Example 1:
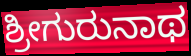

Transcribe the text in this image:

ಶ್ರೀಗುರುನಾಥ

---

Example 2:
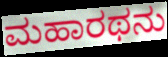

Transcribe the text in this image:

ಮಹಾರಥನು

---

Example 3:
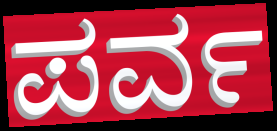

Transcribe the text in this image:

ಪರ್ವ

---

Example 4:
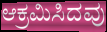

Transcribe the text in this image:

ಆಕ್ರಮಿಸಿದವು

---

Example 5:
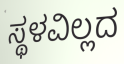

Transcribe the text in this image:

ಸ್ಥಳವಿಲ್ಲದ